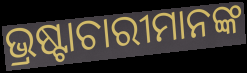
ଭ୍ରଷ୍ଟାଚାରୀମାନଙ୍କ